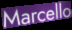
Marcello